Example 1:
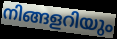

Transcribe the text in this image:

നിങ്ങളറിയും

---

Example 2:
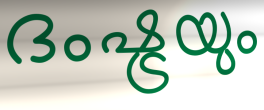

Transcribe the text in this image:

ദംഷ്ട്രയും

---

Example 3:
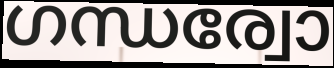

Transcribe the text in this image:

ഗന്ധര്വോ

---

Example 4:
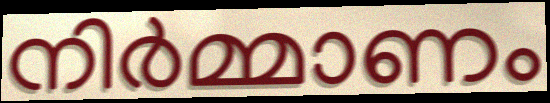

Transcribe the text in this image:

നിർമ്മാണം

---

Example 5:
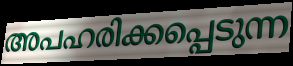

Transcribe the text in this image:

അപഹരിക്കപ്പെടുന്ന